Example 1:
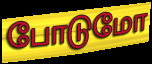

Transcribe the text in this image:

போடுமோ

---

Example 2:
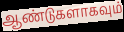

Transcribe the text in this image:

ஆண்டுகளாகவும்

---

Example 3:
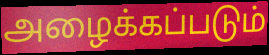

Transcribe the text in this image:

அழைக்கப்படும்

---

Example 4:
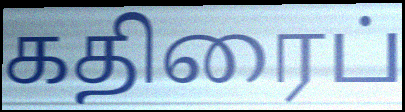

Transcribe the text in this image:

கதிரைப்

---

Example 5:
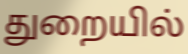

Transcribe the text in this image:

துறையில்